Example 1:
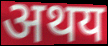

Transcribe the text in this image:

अथय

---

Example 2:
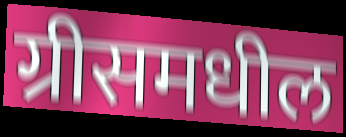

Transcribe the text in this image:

ग्रीसमधील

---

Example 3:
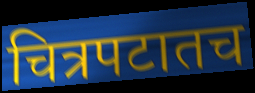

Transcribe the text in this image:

चित्रपटातच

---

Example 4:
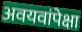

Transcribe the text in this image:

अवयवांपेक्षा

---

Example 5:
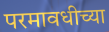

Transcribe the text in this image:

परमावधीच्या